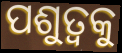
ପଶୁତ୍ୱକୁ